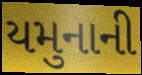
યમુનાની